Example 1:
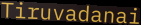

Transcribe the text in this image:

Tiruvadanai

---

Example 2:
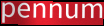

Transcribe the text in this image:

pennum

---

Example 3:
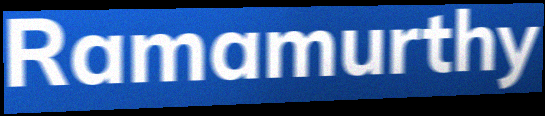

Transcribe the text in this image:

Ramamurthy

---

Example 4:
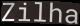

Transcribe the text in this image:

Zilha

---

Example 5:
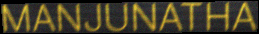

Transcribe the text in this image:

MANJUNATHA